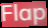
Flap